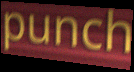
punch